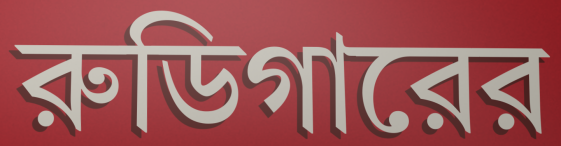
রুডিগারের